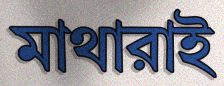
মাথারাই